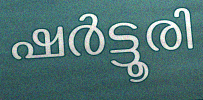
ഷർട്ടൂരി